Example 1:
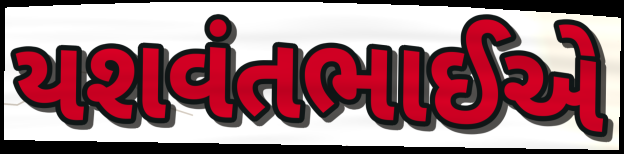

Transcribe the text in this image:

યશવંતભાઈએ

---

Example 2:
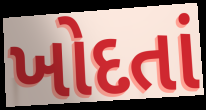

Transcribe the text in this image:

ખોદતાં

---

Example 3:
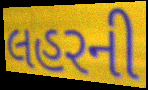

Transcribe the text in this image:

લહરની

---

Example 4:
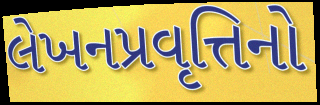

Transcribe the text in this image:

લેખનપ્રવૃત્તિનો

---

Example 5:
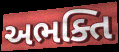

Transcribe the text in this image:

અભક્તિ